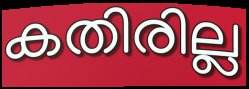
കതിരില്ല